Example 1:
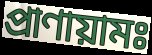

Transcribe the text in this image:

প্রাণায়ামঃ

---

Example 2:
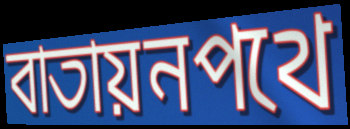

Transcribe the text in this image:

বাতায়নপথে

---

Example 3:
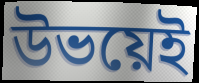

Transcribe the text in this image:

উভয়েই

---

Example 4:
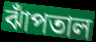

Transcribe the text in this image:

ঝাঁপতাল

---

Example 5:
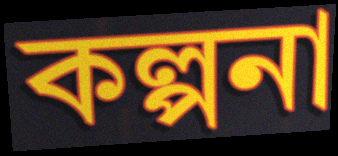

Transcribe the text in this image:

কল্পনা